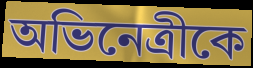
অভিনেত্রীকে